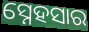
ସ୍ନେହସାର